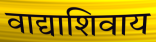
वाद्याशिवाय